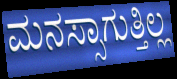
ಮನಸ್ಸಾಗುತ್ತಿಲ್ಲ